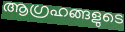
ആഗ്രഹങ്ങളുടെ